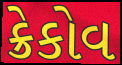
ક્રેકોવ